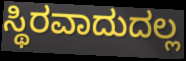
ಸ್ಥಿರವಾದುದಲ್ಲ